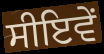
ਸੀਇਵੇਂ